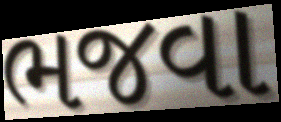
ભજવા